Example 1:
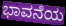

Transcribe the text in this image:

ಭಾವನೆಯ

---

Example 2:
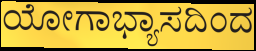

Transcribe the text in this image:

ಯೋಗಾಭ್ಯಾಸದಿಂದ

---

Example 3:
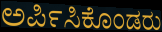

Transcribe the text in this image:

ಅರ್ಪಿಸಿಕೊಂಡರು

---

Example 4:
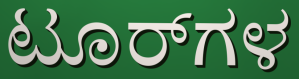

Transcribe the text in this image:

ಟೂರ್‌ಗಳ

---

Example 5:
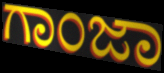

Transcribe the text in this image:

ಗಾಂಜಾ